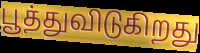
பூத்துவிடுகிறது